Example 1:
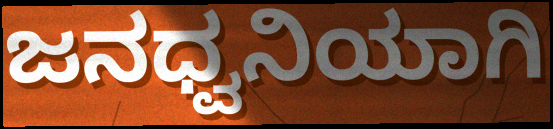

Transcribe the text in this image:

ಜನಧ್ವನಿಯಾಗಿ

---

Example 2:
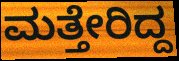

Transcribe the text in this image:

ಮತ್ತೇರಿದ್ದ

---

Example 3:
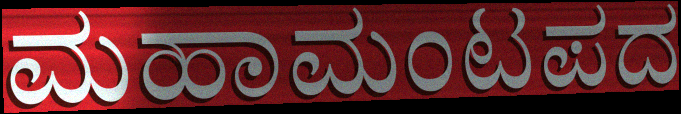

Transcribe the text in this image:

ಮಹಾಮಂಟಪದ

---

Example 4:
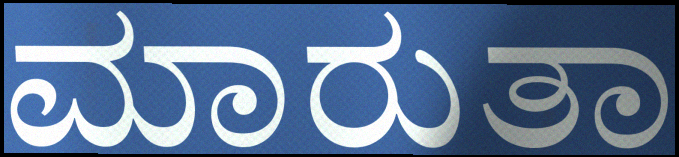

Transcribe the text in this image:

ಮಾರುತಾ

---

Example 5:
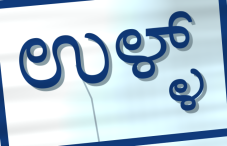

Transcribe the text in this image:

ಉಳ್ಳ್